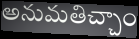
అనుమతిచ్చాం